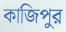
কাজিপুর